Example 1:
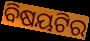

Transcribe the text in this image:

ବିଷୟଟିର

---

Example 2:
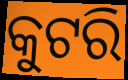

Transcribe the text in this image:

କୁଟରି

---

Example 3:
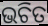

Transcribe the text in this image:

ଭଚିତ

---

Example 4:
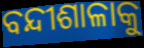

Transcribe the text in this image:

ବନ୍ଦୀଶାଳାକୁ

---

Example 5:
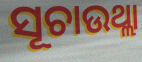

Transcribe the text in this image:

ସୂଚାଉଥ୍ଲା